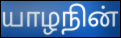
யாழநின்